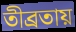
তীব্রতায়